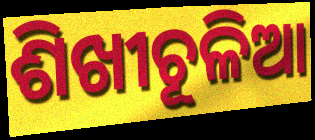
ଶିଖୀଚୂଳିଆ